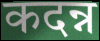
कदन्न